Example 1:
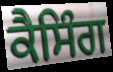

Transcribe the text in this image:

ਕੈਸਿੰਗ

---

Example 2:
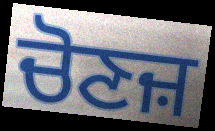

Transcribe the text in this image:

ਚੋਣਜ਼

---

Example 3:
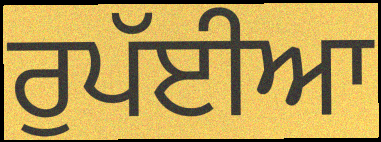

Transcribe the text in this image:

ਰੁਪੱਈਆ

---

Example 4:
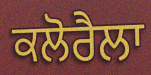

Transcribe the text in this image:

ਕਲੋਰੈਲਾ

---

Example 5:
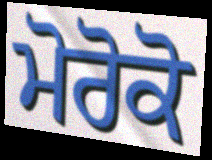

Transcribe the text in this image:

ਮੋਰੋਕੋ